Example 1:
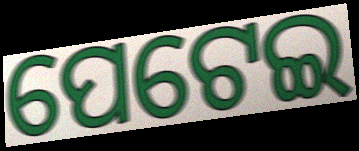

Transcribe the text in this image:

ପେଟେଇ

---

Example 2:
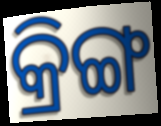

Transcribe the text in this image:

କ୍ରିଙ୍ଗ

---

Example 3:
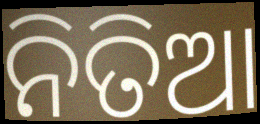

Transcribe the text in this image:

ନିତିଆ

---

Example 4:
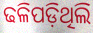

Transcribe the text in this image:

ଢଳିପଡ଼ିଥିଲି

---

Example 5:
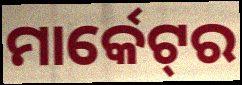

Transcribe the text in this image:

ମାର୍କେଟ୍‌ର